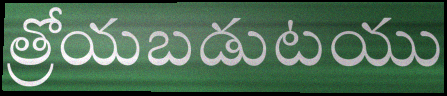
త్రోయబడుటయు